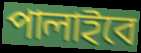
পালাইবে